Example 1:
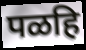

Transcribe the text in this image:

पळहि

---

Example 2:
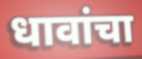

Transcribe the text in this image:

धावांचा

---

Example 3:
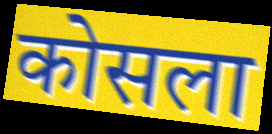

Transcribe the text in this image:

कोसला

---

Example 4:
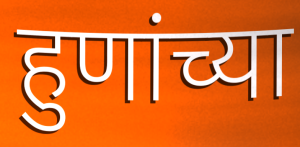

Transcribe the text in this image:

हुणांच्या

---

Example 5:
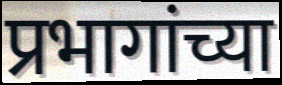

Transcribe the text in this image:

प्रभागांच्या